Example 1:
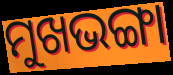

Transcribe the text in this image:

ମୁଖଭଙ୍ଗା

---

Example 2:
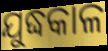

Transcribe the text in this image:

ଯୁଦ୍ଧକାଳ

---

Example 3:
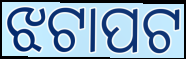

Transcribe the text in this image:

ଝଟାପଟ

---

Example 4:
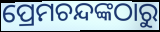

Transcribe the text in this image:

ପ୍ରେମଚନ୍ଦଙ୍କଠାରୁ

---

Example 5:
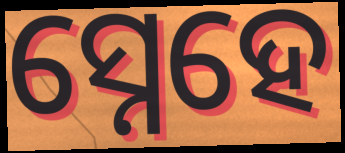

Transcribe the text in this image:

ସ୍ନେହେ